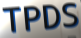
TPDS